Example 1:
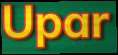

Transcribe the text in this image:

Upar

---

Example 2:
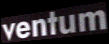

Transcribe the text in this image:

ventum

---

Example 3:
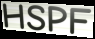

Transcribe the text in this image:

HSPF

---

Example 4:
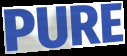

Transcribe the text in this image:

PURE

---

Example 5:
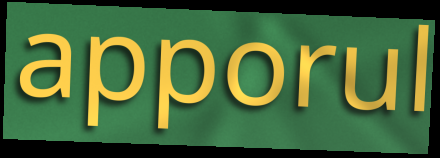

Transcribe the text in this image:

apporul